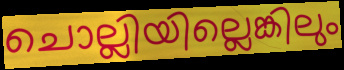
ചൊല്ലിയില്ലെങ്കിലും